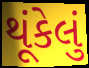
થૂંકેલું